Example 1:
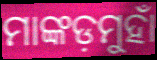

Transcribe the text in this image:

ମାଙ୍କଡ଼ମୁହାଁ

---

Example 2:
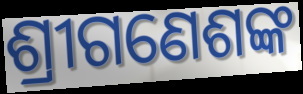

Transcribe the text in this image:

ଶ୍ରୀଗଣେଶଙ୍କ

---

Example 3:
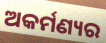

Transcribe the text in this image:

ଅକର୍ମଣ୍ୟର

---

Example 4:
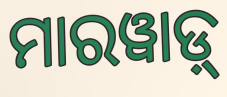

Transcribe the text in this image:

ମାରୱାଡ଼୍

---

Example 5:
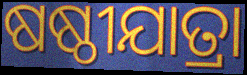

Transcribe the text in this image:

ଷଷ୍ଠୀଯାତ୍ରା